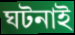
ঘটনাই